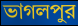
ভাগলপুর